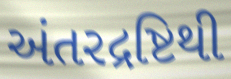
અંતરદ્રષ્ટિથી